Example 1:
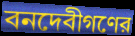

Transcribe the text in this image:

বনদেবীগণের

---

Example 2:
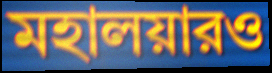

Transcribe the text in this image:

মহালয়ারও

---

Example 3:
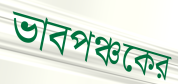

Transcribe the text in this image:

ভাবপঞ্চকের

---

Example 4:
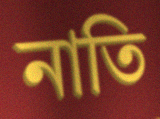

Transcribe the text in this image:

নাতি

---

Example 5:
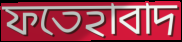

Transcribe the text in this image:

ফতেহাবাদ